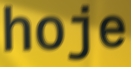
hoje